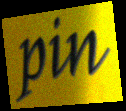
pin